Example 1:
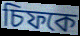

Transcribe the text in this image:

চিফকে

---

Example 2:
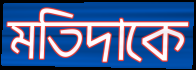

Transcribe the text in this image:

মতিদাকে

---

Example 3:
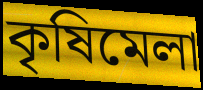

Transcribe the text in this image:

কৃষিমেলা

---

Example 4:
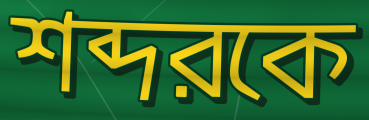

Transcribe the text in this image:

শব্দরকে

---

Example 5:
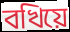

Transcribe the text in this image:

বখিয়ে